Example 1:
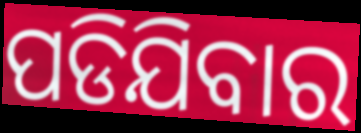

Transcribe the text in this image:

ପଡିଯିବାର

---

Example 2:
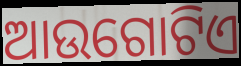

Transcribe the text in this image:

ଆଉଗୋଟିଏ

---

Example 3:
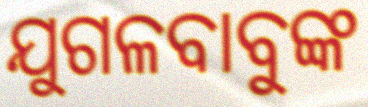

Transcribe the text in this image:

ଯୁଗଳବାବୁଙ୍କ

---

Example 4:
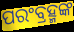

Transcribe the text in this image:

ପରଂବ୍ରହ୍ମଙ୍କ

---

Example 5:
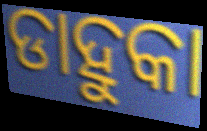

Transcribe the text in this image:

ଡାହୁକା